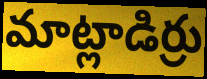
మాట్లాడిర్రు